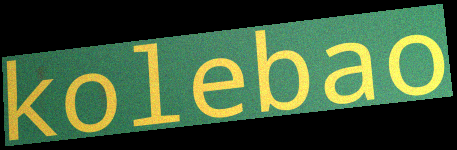
kolebao